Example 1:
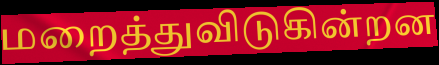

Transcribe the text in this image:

மறைத்துவிடுகின்றன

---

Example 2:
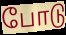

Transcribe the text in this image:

போடு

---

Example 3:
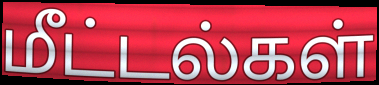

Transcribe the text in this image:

மீட்டல்கள்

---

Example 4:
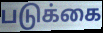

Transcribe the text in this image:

படுக்கை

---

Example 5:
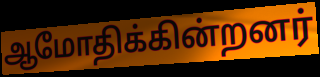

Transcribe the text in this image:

ஆமோதிக்கின்றனர்